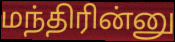
மந்திரின்னு